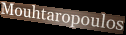
Mouhtaropoulos